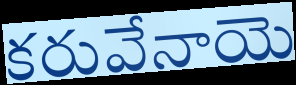
కరువేనాయె